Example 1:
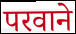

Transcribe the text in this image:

परवाने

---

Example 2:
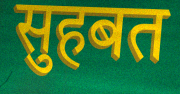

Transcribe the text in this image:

सुहबत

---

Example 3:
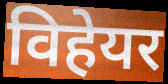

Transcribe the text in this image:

विहेयर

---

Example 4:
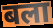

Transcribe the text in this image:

बला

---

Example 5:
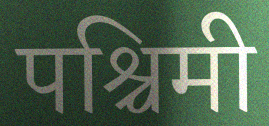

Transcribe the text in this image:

पश्चिमी